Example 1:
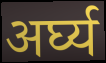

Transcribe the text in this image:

अर्घ्य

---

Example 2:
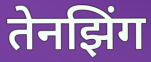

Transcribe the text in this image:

तेनझिंग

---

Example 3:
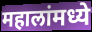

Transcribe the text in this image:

महालांमध्ये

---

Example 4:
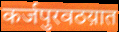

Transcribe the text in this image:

कर्जपुरवठय़ात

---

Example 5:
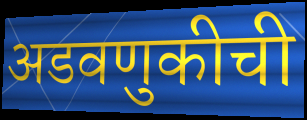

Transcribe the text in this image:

अडवणुकीची